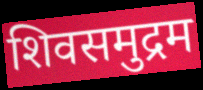
शिवसमुद्रम